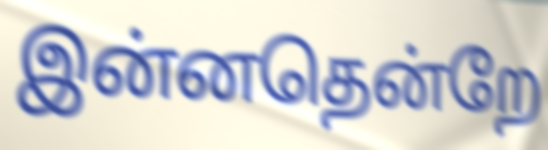
இன்னதென்றே